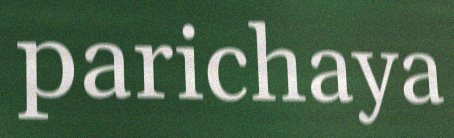
parichaya